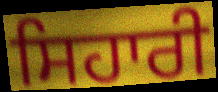
ਸਿਹਾਰੀ